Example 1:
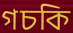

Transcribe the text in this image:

গচকি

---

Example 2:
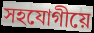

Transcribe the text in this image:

সহযোগীয়ে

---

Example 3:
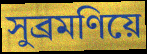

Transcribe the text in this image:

সুব্ৰমণিয়ে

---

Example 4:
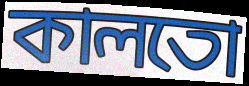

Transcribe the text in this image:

কালতো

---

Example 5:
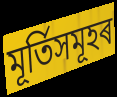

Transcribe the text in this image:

মূৰ্তিসমূহৰ